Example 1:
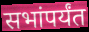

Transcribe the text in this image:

सभांपर्यंत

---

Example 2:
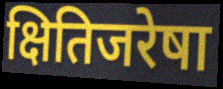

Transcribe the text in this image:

क्षितिजरेषा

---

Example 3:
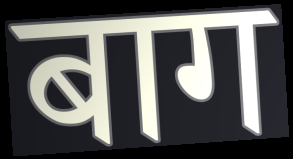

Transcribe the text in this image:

बाग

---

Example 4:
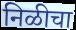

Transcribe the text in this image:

निळीचा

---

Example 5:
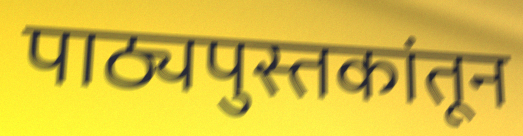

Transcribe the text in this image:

पाठ्यपुस्तकांतून